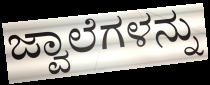
ಜ್ವಾಲೆಗಳನ್ನು